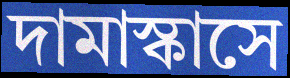
দামাস্কাসে